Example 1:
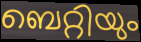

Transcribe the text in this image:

ബെറ്റിയും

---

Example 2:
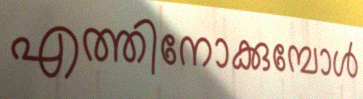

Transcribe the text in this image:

എത്തിനോക്കുമ്പോൾ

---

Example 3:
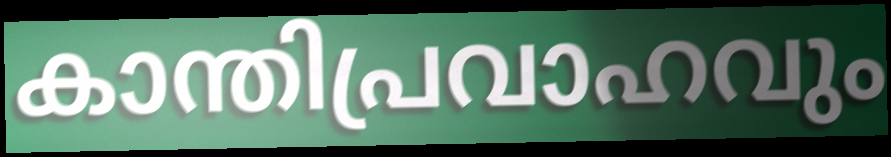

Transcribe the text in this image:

കാന്തിപ്രവാഹവും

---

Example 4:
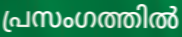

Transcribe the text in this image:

പ്രസംഗത്തിൽ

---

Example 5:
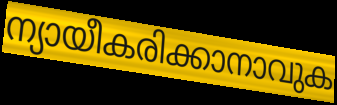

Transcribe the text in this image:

ന്യായീകരിക്കാനാവുക